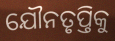
ଯୌନତୃପ୍ତିକୁ